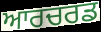
ਆਰਚਰਡ